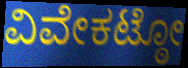
ವಿವೇಕಟ್ಠೋ